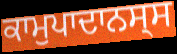
ਕਾਮੁਪਾਦਾਨਸ੍ਸ